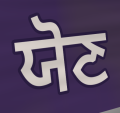
ਯੋਣ